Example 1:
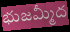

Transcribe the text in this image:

భుజమ్మీద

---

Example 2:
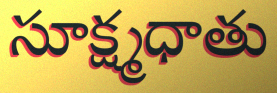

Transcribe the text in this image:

సూక్ష్మధాతు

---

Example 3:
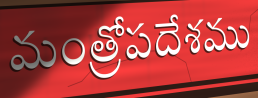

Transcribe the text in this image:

మంత్రోపదేశము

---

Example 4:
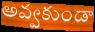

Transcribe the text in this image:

అవ్వకుండా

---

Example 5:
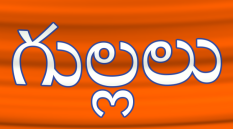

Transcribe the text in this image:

గుల్లలు